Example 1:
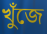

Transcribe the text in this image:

খুঁজে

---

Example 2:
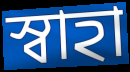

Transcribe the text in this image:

স্বাহা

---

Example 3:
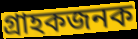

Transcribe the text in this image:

গ্ৰাহকজনক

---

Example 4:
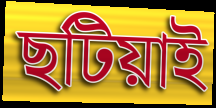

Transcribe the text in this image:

ছটিয়াই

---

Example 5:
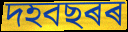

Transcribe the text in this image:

দহবছৰৰ